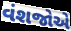
વંશજોએ